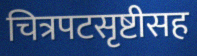
चित्रपटसृष्टीसह